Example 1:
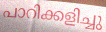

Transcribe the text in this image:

പാറിക്കളിച്ചു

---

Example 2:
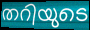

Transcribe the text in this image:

തറിയുടെ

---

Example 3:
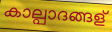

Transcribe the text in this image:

കാല്പാദങ്ങള്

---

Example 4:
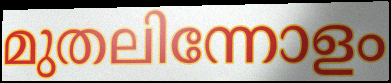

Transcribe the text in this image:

മുതലിന്നോളം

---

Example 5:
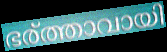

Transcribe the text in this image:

ഭര്ത്താവായി